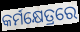
କର୍ମକ୍ଷେତ୍ରରେ